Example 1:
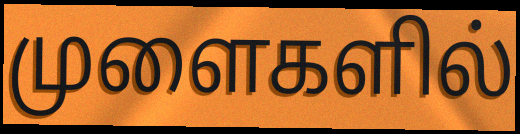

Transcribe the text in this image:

முளைகளில்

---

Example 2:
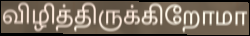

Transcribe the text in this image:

விழித்திருக்கிறோமா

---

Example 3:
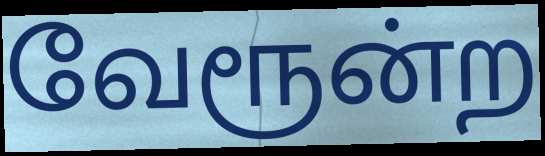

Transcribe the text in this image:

வேரூன்ற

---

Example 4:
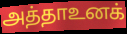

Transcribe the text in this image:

அத்தாஉனக்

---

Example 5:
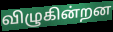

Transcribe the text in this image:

விழுகின்றன